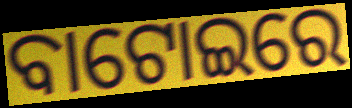
ବାଟୋଇରେ